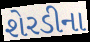
શેરડીના